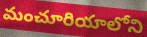
మంచూరియాలోని